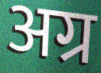
अग्र